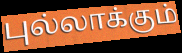
புல்லாக்கும்